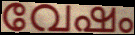
വേഷം